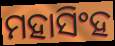
ମହାସିଂହ